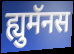
ह्युमॅनस